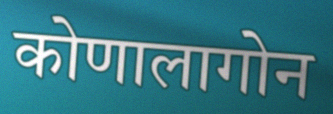
कोणालागोन